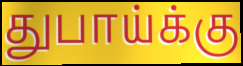
துபாய்க்கு